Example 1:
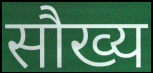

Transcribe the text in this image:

सौख्य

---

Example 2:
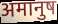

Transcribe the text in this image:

अमानुष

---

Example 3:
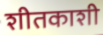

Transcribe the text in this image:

शीतकाशी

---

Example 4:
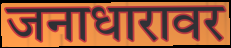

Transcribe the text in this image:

जनाधारावर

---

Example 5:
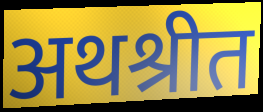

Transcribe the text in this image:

अथश्रीत